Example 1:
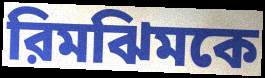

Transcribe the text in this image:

রিমঝিমকে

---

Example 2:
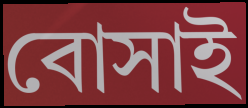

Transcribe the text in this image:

বোসাই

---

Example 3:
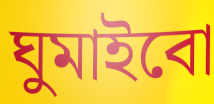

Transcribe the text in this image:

ঘুমাইবো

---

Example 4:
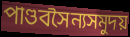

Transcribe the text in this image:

পাণ্ডবসৈন্যসমুদয়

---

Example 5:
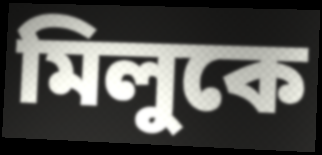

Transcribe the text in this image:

মিলুকে